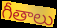
గీతాలు